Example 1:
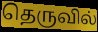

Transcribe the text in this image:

தெருவில்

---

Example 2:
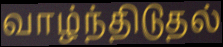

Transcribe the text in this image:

வாழ்ந்திடுதல்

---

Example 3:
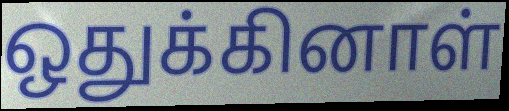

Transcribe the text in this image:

ஒதுக்கினாள்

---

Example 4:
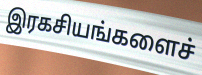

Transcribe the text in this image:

இரகசியங்களைச்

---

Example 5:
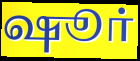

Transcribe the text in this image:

ஷூர்